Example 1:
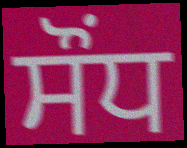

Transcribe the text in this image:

ਸੌਂਧ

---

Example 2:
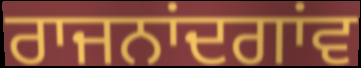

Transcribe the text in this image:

ਰਾਜਨਾਂਦਗਾਂਵ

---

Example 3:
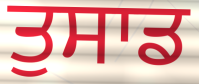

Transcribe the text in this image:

ਤੁਸਾਡ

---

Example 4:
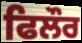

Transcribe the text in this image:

ਫਿਲੌਰ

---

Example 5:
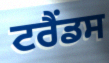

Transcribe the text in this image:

ਟਰੈਂਡਸ